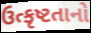
ઉત્કૃષ્ટતાનો